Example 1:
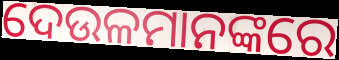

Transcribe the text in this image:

ଦେଉଳମାନଙ୍କରେ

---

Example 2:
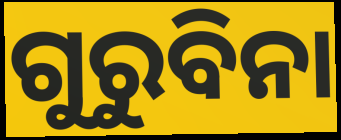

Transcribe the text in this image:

ଗୁରୁବିନା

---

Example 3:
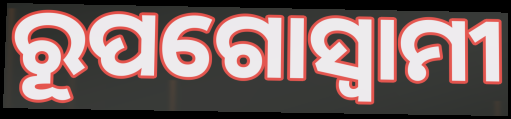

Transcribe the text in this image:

ରୂପଗୋସ୍ୱାମୀ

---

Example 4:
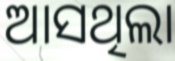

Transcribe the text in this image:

ଆସଥିଲା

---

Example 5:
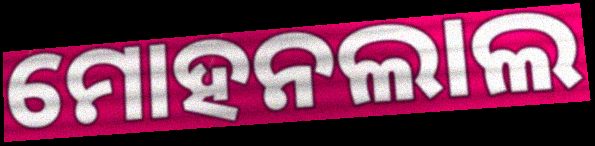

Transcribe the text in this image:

ମୋହନଲାଲ